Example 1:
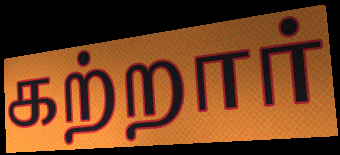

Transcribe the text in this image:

கற்றார்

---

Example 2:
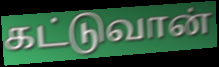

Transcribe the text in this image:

கட்டுவான்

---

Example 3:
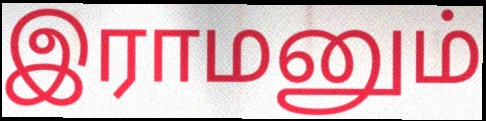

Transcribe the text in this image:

இராமனும்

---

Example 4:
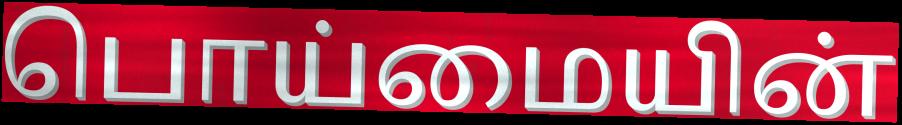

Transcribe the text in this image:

பொய்மையின்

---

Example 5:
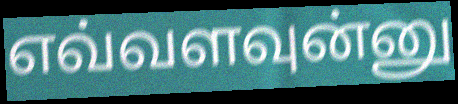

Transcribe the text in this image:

எவ்வளவுன்னு